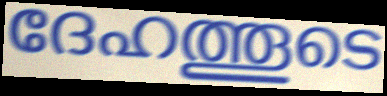
ദേഹത്തൂടെ